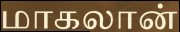
மாகலான்